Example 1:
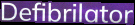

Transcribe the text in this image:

Defibrilator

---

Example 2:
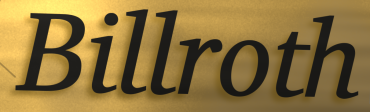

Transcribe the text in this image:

Billroth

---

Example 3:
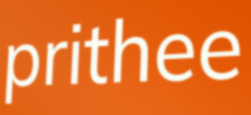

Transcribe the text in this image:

prithee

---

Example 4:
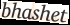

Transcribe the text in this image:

bhashet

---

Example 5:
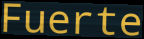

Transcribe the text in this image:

Fuerte